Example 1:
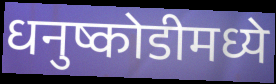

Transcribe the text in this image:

धनुष्कोडीमध्ये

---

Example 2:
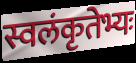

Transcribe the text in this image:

स्वलंकृतेभ्यः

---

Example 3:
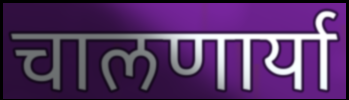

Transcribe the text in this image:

चालणार्या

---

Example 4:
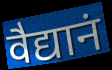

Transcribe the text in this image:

वैद्यानं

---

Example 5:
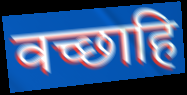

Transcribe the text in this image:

वच्छाहि